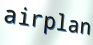
airplan